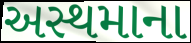
અસ્થમાના